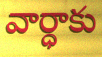
వార్ధాకు